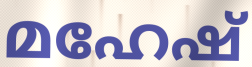
മഹേഷ്